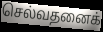
செல்வதனைக்